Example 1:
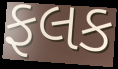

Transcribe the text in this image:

ફલક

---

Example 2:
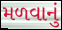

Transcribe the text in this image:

મળવાનું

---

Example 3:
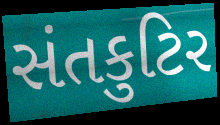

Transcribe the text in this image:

સંતકુટિર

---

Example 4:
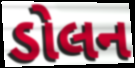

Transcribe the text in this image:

ડોલન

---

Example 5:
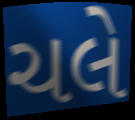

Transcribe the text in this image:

ચલે